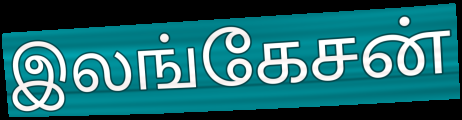
இலங்கேசன்